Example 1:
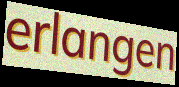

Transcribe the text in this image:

erlangen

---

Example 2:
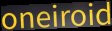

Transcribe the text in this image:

oneiroid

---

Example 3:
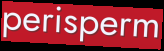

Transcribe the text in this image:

perisperm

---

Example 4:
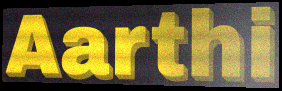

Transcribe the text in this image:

Aarthi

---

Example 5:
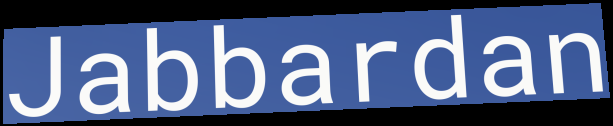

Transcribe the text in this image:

Jabbardan